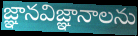
జ్ఞానవిజ్ఞానాలను